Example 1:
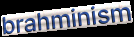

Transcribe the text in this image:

brahminism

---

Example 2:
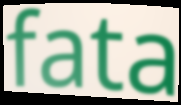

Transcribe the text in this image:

fata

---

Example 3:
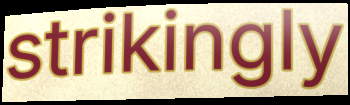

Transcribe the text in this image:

strikingly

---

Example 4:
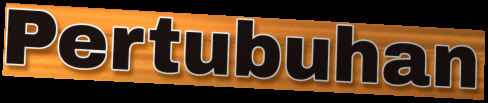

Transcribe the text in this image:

Pertubuhan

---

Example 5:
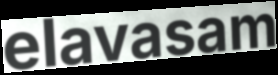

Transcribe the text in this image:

elavasam